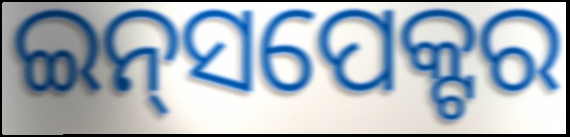
ଇନ୍‌ସପେକ୍ଟର